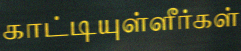
காட்டியுள்ளீர்கள்